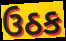
ઉઠક